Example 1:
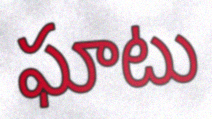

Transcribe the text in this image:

ఘాటు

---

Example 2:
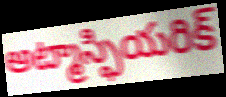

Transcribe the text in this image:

అట్మాస్ఫియరిక్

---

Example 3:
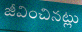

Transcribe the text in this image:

జీవించినట్లు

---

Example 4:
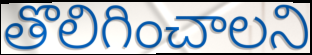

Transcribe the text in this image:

తొలిగించాలని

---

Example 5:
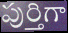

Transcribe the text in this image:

పుర్తిగా